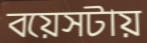
বয়েসটায়